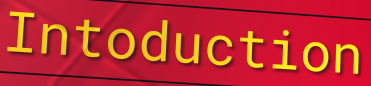
Intoduction